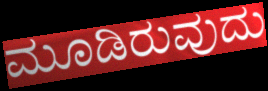
ಮೂಡಿರುವುದು